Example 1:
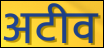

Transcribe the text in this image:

अटीव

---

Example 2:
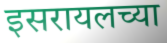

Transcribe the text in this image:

इसरायलच्या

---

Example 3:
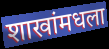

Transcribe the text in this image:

शाखांमधला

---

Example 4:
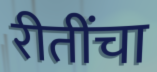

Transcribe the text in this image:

रीतींचा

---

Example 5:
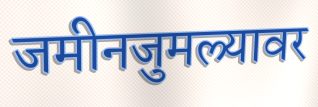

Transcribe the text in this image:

जमीनजुमल्यावर